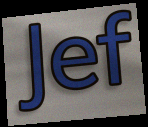
Jef